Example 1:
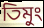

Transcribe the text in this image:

তিমুং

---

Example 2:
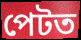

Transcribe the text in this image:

পেটত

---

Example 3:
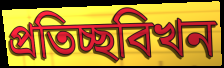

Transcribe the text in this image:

প্ৰতিচ্ছবিখন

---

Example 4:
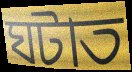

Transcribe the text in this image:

ঘটাত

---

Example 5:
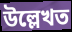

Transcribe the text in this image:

উল্লেখত